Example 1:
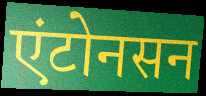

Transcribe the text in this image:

एंटोनसन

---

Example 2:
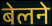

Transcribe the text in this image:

बेलने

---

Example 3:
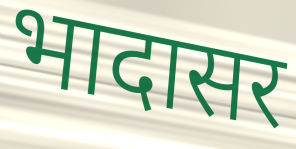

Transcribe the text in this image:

भादासर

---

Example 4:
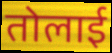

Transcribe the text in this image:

तोलाई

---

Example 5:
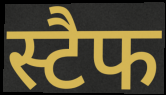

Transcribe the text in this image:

स्टैफ